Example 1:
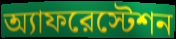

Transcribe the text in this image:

অ্যাফরেস্টেশন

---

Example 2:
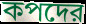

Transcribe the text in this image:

কপদের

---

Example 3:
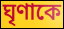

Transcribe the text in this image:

ঘৃণাকে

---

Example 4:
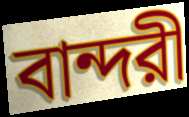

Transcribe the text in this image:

বান্দরী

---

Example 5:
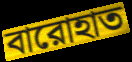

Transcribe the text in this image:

বারোহাত